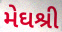
મેઘશ્રી